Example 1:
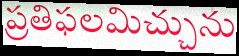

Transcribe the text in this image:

ప్రతిఫలమిచ్చును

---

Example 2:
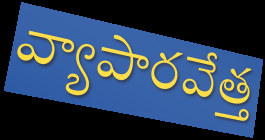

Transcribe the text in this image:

వ్యాపారవేత్త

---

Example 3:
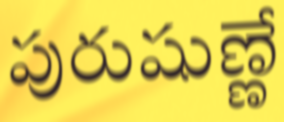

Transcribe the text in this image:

పురుషుణ్ణే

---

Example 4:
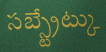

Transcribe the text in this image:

సబ్స్ట్రేట్కు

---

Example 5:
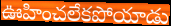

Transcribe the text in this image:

ఊహించలేకపోయాడు